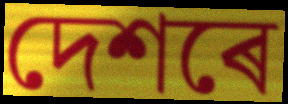
দেশৰে